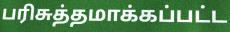
பரிசுத்தமாக்கப்பட்ட